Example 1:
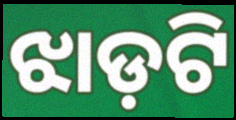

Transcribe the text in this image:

ଝାଡ଼ଟି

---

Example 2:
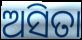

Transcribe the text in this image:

ଅସିତା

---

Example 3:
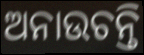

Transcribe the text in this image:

ଅନାଉଚନ୍ତି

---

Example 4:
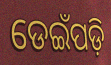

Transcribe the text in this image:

ଡେଇଁପଡ଼ି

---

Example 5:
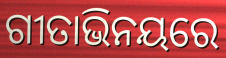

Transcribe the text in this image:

ଗୀତାଭିନୟରେ